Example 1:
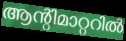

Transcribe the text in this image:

ആന്റിമാറ്ററിൽ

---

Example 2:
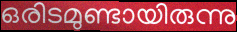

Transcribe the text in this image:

ഒരിടമുണ്ടായിരുന്നു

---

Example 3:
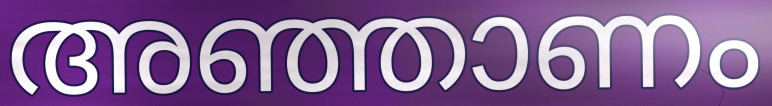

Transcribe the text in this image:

അഞ്ഞാണം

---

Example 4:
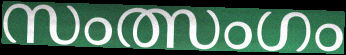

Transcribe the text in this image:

സംത്സംഗം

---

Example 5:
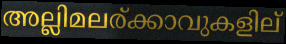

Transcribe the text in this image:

അല്ലിമലര്ക്കാവുകളില്